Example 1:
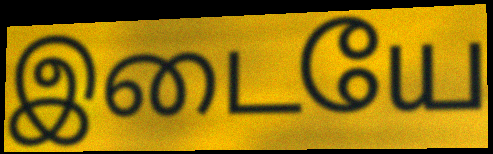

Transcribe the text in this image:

இடையே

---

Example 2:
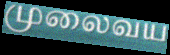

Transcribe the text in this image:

முலைவய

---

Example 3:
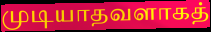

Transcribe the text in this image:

முடியாதவளாகத்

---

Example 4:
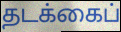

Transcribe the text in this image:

தடக்கைப்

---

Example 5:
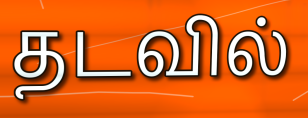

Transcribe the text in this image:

தடவில்